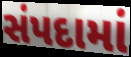
સંપદામાં